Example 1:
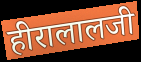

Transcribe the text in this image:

हीरालालजी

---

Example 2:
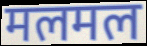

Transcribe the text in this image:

मलमल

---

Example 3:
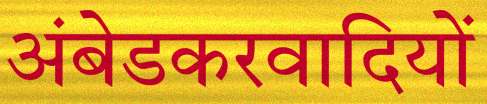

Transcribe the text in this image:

अंबेडकरवादियों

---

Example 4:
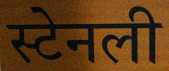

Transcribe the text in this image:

स्टेनली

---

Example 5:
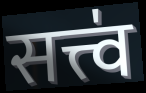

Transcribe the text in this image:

सत्त्व॑